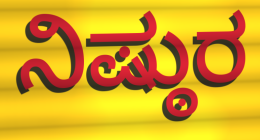
ನಿಷ್ಠುರ